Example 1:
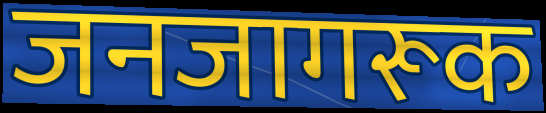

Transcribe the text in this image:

जनजागरूक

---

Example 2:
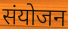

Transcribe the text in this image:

संयोजन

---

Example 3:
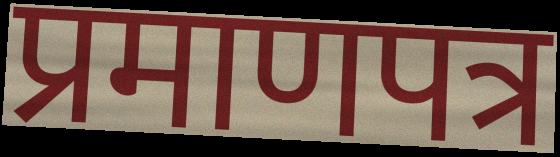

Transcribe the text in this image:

प्रमाणपत्र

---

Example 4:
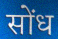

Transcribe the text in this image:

सोंध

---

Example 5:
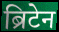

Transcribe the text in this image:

ब्रिटेन